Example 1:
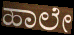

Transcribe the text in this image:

ಹಾಲೇ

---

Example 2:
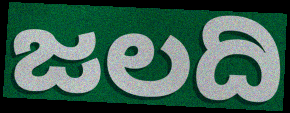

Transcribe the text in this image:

ಜಲದಿ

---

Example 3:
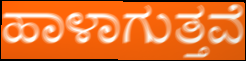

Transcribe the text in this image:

ಹಾಳಾಗುತ್ತವೆ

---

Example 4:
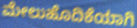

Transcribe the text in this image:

ಮೇಲುಹೊದಿಕೆಯಾಗಿ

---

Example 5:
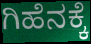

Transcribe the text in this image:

ಗಿಹೆನಕ್ಕೆ